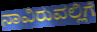
ನಾವಿರುವಲ್ಲಿಗೆ